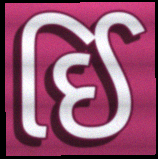
ઈિ